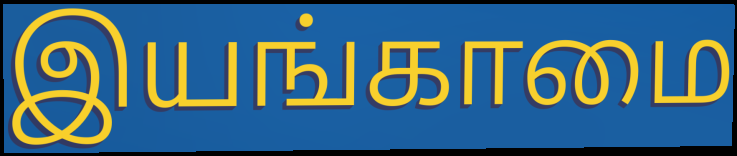
இயங்காமை